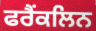
ਫਰੈਂਕਲਿਨ